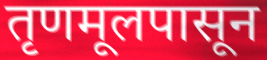
तृणमूलपासून